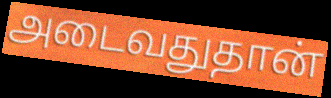
அடைவதுதான்